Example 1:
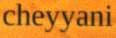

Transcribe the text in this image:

cheyyani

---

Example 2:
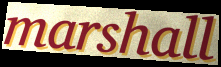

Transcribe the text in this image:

marshall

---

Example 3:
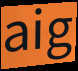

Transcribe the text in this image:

aig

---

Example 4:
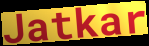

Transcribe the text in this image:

Jatkar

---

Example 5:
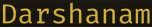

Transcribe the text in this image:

Darshanam